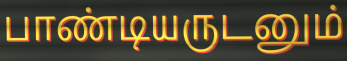
பாண்டியருடனும்